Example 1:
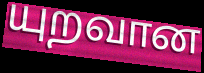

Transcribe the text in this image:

யுறவான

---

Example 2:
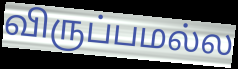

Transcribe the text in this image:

விருப்பமல்ல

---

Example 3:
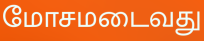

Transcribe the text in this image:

மோசமடைவது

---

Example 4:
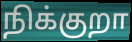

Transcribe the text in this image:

நிக்குறா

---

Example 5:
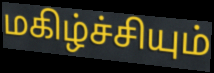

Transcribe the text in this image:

மகிழ்ச்சியும்